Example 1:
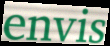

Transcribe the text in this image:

envis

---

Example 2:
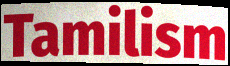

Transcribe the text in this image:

Tamilism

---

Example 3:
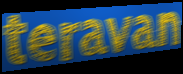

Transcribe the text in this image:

teravan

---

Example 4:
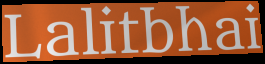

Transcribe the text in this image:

Lalitbhai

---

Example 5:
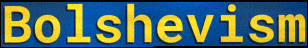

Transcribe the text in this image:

Bolshevism